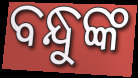
ବନ୍ଧୁଙ୍କ